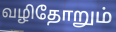
வழிதோறும்